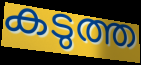
കടുത്ത